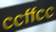
ccffcc